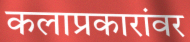
कलाप्रकारांवर